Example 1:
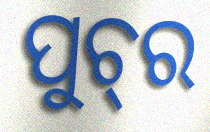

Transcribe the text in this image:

ପୁଚ୍‍ର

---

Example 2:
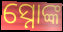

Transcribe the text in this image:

ସ୍ନୋଙ୍କ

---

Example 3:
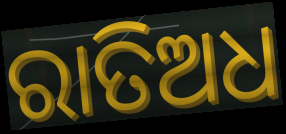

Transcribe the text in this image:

ରାତିଅଧ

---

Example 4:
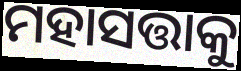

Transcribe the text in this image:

ମହାସତ୍ତାକୁ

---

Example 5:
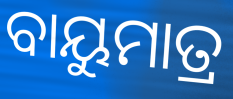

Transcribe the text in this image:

ବାୟୁମାତ୍ର